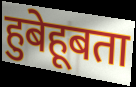
हुबेहूबता